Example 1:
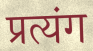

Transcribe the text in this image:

प्रत्यंग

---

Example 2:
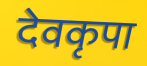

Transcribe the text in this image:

देवकृपा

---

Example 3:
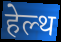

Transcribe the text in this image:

हेल्थ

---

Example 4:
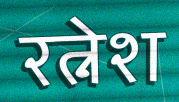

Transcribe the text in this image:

रत्नेश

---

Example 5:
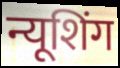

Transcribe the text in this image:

न्यूशिंग